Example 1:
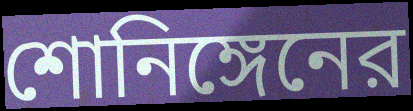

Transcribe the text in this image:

শোনিঙ্গেনের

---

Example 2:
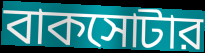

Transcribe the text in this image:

বাকসোটার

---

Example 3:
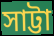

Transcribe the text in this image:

সাট্টা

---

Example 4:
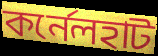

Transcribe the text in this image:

কর্নেলহাট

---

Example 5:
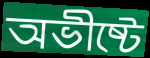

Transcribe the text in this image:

অভীষ্টে